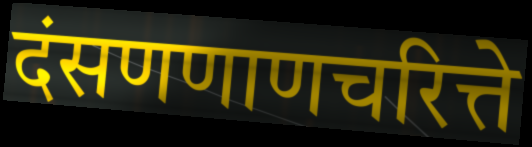
दंसणणाणचरित्ते